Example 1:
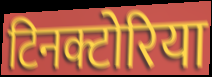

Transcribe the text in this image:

टिनक्टोरिया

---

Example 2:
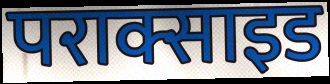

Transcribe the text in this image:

पराक्साइड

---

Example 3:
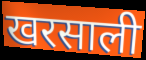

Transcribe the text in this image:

खरसाली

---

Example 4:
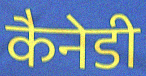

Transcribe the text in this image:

कैनेडी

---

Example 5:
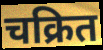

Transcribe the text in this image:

चक्रित